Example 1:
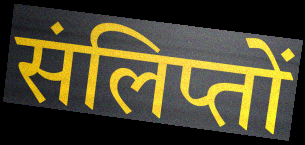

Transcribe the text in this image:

संलिप्तों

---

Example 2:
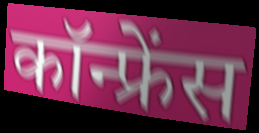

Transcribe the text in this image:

कॉन्फ्रेंस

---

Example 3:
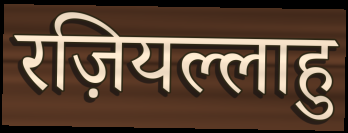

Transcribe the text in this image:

रज़ियल्लाहु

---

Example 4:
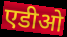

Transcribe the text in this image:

एडीओ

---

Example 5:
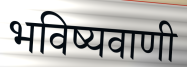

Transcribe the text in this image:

भविष्यवाणी